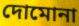
দোমোনা